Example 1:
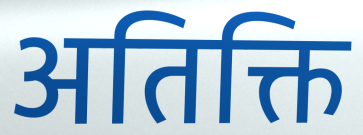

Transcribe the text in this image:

अतिक्ति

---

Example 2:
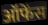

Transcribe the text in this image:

ऑफेंस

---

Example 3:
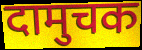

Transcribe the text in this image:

दामुचक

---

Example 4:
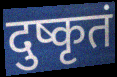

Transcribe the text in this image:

दुष्कृतं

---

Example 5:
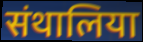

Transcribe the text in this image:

संथालिया